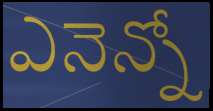
ఎనెన్నో